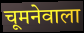
चूमनेवाला